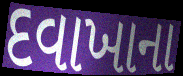
દવાખાના